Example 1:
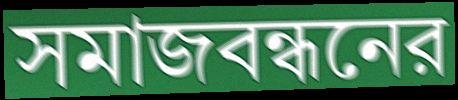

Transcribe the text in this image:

সমাজবন্ধনের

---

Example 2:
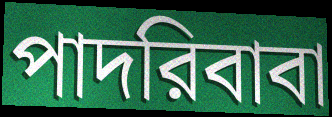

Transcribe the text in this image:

পাদরিবাবা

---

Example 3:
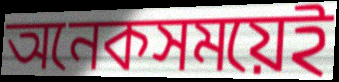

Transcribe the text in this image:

অনেকসময়েই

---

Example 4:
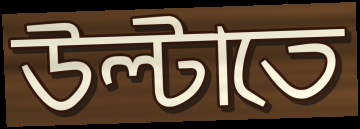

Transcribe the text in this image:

উল্টাতে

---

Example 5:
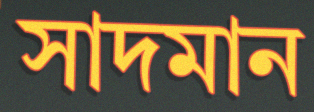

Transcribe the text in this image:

সাদমান